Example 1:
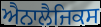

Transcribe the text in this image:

ਐਨਾਲੈਜਿਕਸ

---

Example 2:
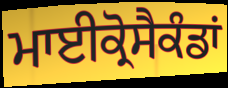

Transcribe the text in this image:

ਮਾਈਕ੍ਰੋਸੈਕੰਡਾਂ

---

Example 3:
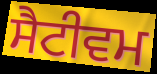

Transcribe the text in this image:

ਸੈਟੀਵਮ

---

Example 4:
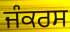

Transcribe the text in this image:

ਜੰਕਰਸ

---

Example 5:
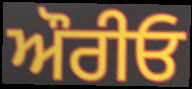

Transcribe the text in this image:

ਔਰੀਓ